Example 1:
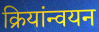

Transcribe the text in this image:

क्रियांन्वयन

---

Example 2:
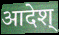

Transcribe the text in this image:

आदेश्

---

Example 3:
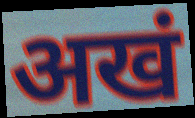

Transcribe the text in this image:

अखं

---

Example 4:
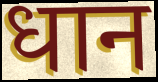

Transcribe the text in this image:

धान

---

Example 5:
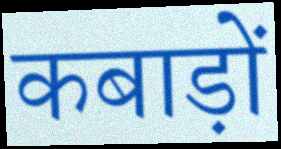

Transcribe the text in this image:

कबाड़ों